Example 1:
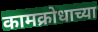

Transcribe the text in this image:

कामक्रोधाच्या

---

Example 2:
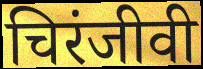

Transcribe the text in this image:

चिरंजीवी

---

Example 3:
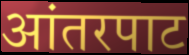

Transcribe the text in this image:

आंतरपाट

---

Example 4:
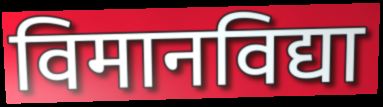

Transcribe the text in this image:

विमानविद्या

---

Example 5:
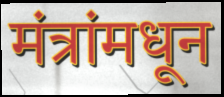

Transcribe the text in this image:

मंत्रांमधून